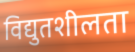
विद्युतशीलता